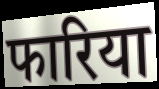
फारिया